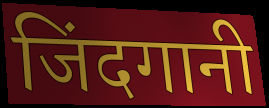
जिंदगानी